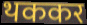
थककर